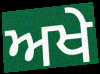
ਅਖੇ